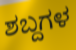
ಶಬ್ದಗಳ